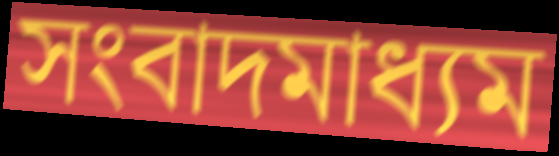
সংবাদমাধ্যম